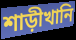
শাড়ীখানি